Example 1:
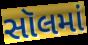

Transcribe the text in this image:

સૉલમાં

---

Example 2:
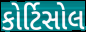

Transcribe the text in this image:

કોર્ટિસોલ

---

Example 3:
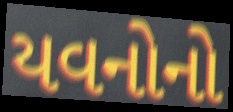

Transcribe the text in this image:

યવનોનો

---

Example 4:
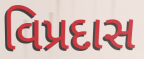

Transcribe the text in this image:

વિપ્રદાસ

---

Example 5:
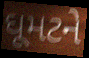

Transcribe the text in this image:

ઘૂમટને